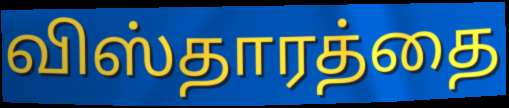
விஸ்தாரத்தை